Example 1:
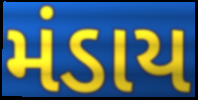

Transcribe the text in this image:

મંડાય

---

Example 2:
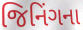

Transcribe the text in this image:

જિનિંગના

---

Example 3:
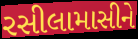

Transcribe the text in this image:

રસીલામાસીને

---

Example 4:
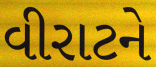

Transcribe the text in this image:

વીરાટને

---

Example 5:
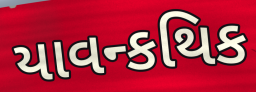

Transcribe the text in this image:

યાવન્કથિક